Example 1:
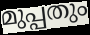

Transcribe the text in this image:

മുപ്പതും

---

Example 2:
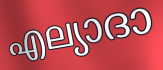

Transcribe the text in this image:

എല്യാദാ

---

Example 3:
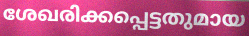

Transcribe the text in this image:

ശേഖരിക്കപ്പെട്ടതുമായ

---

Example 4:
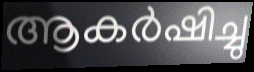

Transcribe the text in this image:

ആകർഷിച്ചു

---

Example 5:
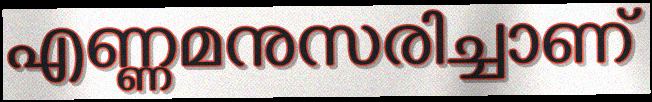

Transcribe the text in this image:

എണ്ണമനുസരിച്ചാണ്